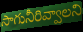
సాగునీరివ్వాలని